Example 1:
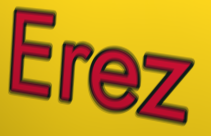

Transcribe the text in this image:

Erez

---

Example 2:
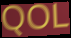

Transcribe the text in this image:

QOL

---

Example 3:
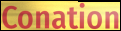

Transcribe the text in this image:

Conation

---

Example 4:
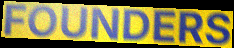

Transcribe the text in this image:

FOUNDERS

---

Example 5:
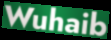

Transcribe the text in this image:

Wuhaib